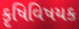
કૃષિવિષયક